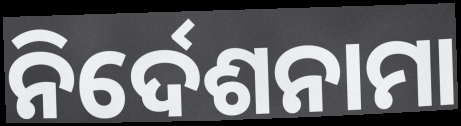
ନିର୍ଦେଶନାମା